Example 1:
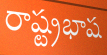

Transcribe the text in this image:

రాష్ట్రభాష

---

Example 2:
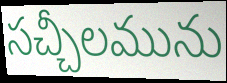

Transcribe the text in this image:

సచ్చీలమును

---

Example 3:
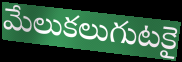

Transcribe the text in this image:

మేలుకలుగుటకై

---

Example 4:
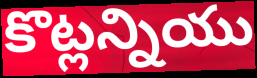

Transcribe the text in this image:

కొట్లన్నియు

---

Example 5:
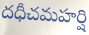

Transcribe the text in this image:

దధీచమహర్షి